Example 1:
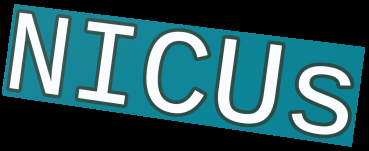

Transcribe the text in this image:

NICUs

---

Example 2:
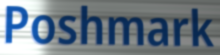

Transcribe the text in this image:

Poshmark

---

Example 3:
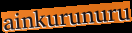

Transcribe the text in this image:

ainkurunuru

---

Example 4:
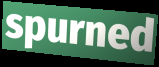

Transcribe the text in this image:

spurned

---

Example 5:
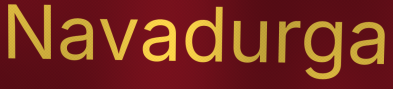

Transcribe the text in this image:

Navadurga